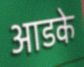
आडके